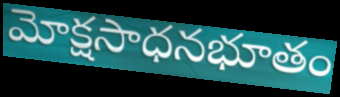
మోక్షసాధనభూతం